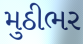
મુઠીભર